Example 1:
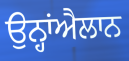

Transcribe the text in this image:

ਉਨ੍ਹਾਂਐਲਾਨ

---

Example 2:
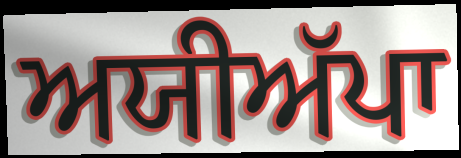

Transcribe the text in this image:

ਅਯੀਅੱਪਾ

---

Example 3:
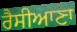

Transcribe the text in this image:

ਰੈਸੀਆਣਾ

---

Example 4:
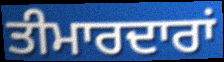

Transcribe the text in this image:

ਤੀਮਾਰਦਾਰਾਂ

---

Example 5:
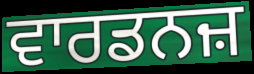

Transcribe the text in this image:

ਵਾਰਡਨਜ਼